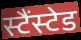
स्टैंस्टेड